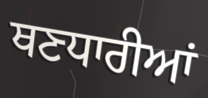
ਥਣਧਾਰੀਆਂ